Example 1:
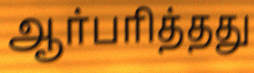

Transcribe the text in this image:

ஆர்பரித்தது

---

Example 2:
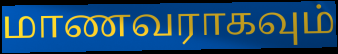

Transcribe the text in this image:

மாணவராகவும்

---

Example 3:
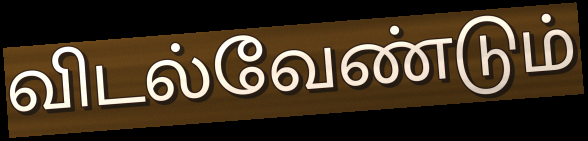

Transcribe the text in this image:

விடல்வேண்டும்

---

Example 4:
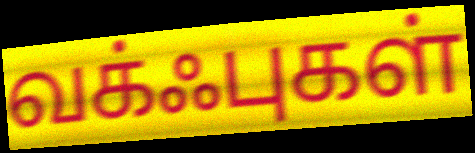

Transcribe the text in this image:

வக்ஃபுகள்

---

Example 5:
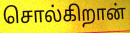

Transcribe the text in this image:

சொல்கிறான்